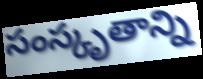
సంస్కృతాన్ని